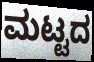
ಮಟ್ಟದ